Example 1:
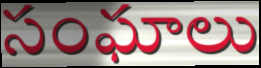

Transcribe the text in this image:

సంఘాలు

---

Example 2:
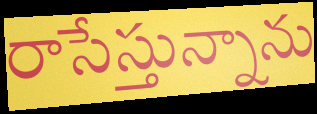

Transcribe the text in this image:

రాసేస్తున్నాను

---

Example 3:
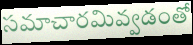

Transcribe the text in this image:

సమాచారమివ్వడంతో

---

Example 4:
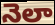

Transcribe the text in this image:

నెలా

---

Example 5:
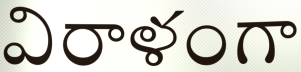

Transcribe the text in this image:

విరాళంగా